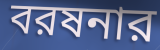
বরষনার